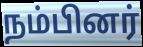
நம்பினர்